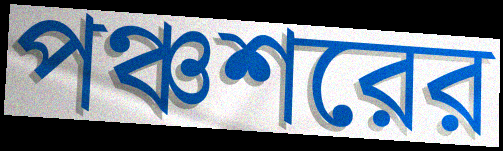
পঞ্চশরের